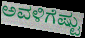
ಅವಳಿಗೆಷ್ಟು